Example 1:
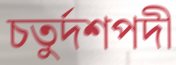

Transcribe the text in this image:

চতুর্দশপদী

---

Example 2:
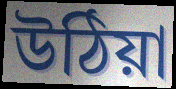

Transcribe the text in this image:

উঠিয়া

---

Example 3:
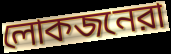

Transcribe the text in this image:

লোকজনেরা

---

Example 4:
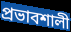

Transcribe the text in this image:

প্রভাবশালী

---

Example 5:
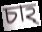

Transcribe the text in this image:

চাহ্